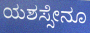
ಯಶಸ್ಸೇನೂ